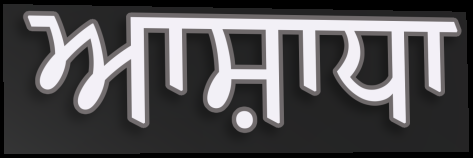
ਆਸ਼ਾਧਾ